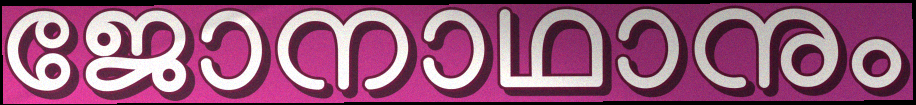
ജോനാഥാനും